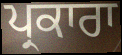
ਪ੍ਰਕਾਰਾ